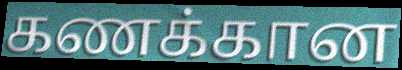
கணக்கான